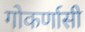
गोकर्णासी